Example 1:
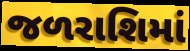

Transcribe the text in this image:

જળરાશિમાં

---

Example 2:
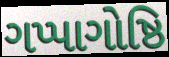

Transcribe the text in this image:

ગપ્પાગોષ્ઠિ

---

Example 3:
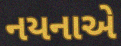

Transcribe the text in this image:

નયનાએ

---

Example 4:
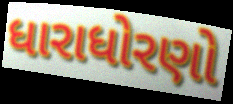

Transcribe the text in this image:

ધારાધોરણો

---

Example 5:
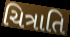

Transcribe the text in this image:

ચિત્રાતિ